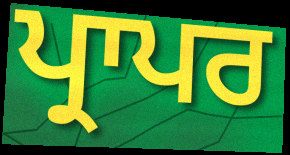
ਪ੍ਰਾਪਰ